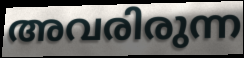
അവരിരുന്ന